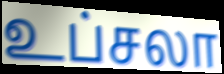
உப்சலா